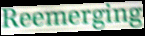
Reemerging